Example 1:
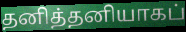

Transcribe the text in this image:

தனித்தனியாகப்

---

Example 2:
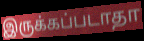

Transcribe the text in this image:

இருக்கப்படாதா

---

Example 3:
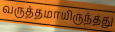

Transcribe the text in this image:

வருத்தமாயிருந்தது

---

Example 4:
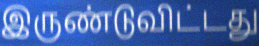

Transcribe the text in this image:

இருண்டுவிட்டது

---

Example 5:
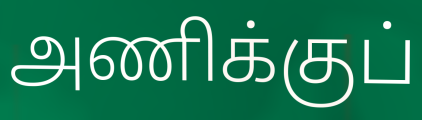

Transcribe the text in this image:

அணிக்குப்